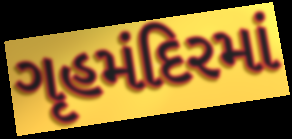
ગૃહમંદિરમાં